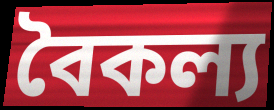
বৈকল্য